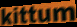
kittum